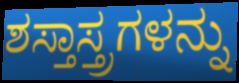
ಶಸ್ತಾಸ್ತ್ರಗಳನ್ನು